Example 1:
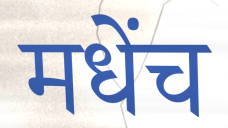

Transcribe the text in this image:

मधेंच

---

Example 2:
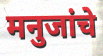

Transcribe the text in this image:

मनुजांचे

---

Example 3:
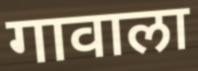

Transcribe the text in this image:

गावाला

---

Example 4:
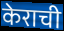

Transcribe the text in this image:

केराची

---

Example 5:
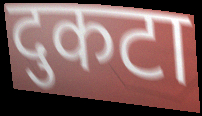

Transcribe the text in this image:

दुकटा